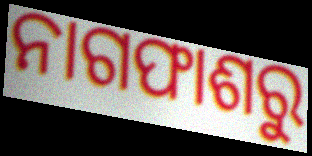
ନାଗଫାଶରୁ